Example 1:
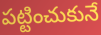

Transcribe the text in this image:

పట్టించుకునే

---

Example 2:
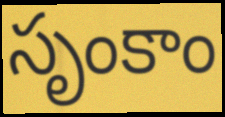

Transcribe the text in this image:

సృంకాం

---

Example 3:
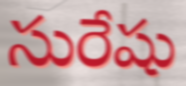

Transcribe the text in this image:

సురేషు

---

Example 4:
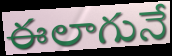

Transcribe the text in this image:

ఈలాగునే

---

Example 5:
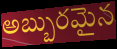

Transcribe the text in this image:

అబ్బురమైన